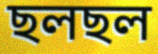
ছলছল